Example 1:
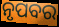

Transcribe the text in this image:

ନୃପବର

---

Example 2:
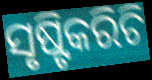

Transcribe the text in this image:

ସୃଷ୍ଟିକରିଚି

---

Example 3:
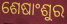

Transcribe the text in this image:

ଶେଷାଂଶୁର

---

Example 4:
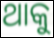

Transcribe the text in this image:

ଥାକୁ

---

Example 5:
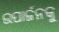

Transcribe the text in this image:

ଉପାର୍ଜନକୁ